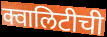
क्वालिटीची